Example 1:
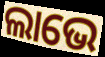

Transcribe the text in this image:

ଲାଭେ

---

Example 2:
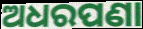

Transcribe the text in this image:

ଅଧରପଣା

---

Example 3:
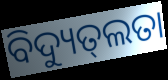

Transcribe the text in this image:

ବିଦ୍ୟୁତ୍‌ଲତା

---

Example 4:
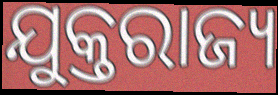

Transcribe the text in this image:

ଯୁକ୍ତରାଜ୍ୟ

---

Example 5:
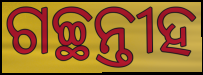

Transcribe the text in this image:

ଗଚ୍ଛନ୍ତୀହ